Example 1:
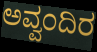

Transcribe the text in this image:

ಅವ್ವಂದಿರ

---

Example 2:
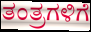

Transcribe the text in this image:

ತಂತ್ರಗಳಿಗೆ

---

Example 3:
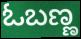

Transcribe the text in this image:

ಓಬಣ್ಣ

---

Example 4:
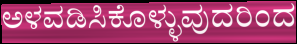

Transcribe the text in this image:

ಅಳವಡಿಸಿಕೊಳ್ಳುವುದರಿಂದ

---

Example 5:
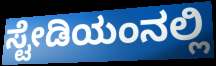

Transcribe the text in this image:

ಸ್ಟೇಡಿಯಂನಲ್ಲಿ